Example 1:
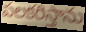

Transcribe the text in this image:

పలకరిస్తాను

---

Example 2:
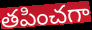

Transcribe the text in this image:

తపించగా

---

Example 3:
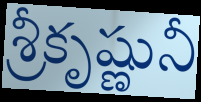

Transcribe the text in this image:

శ్రీకృష్ణునీ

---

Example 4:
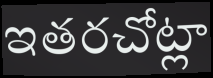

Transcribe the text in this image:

ఇతరచోట్లా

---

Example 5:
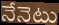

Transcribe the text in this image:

నేనెటు